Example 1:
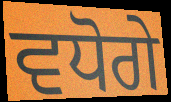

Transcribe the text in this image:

ਵਧੋਗੇ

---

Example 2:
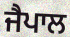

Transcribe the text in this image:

ਜੈਪਾਲ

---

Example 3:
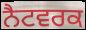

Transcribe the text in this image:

ਨੈਟਵਰਕ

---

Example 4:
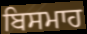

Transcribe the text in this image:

ਬਿਸਮਾਹ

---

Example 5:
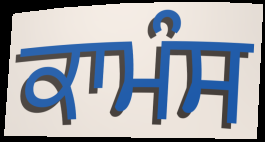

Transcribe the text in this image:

ਕਾਮੰਸ